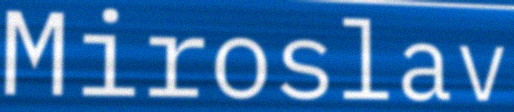
Miroslav